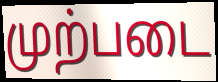
முற்படை